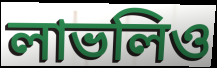
লাভলিও